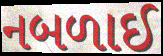
નબળાઈ